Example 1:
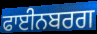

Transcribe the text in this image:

ਫਾਈਨਬਰਗ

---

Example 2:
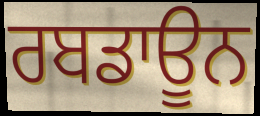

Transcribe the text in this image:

ਰਬਡਾਊਨ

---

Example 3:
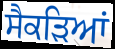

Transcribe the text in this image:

ਸੈਕੜਿਆਂ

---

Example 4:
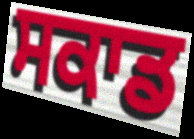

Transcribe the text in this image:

ਸਕਾਡ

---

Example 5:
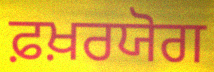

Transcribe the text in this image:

ਫ਼ਖ਼ਰਯੋਗ